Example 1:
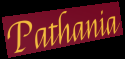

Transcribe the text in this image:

Pathania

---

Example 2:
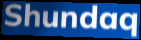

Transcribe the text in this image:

Shundaq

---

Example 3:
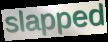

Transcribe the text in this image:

slapped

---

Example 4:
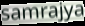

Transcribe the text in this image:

samrajya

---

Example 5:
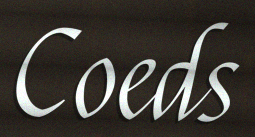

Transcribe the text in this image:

Coeds